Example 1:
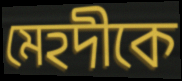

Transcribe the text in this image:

মেহদীকে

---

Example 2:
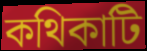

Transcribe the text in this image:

কথিকাটি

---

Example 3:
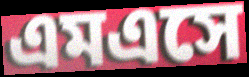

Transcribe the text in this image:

এমএসে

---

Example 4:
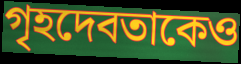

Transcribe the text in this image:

গৃহদেবতাকেও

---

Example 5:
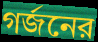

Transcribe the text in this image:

গর্জনের